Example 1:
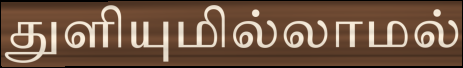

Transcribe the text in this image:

துளியுமில்லாமல்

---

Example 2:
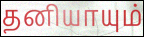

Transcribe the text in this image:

தனியாயும்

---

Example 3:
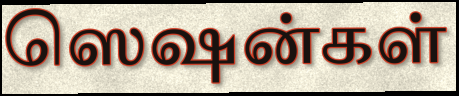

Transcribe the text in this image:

ஸெஷன்கள்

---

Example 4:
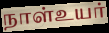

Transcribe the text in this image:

நாள்உயர்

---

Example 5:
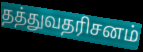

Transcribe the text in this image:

தத்துவதரிசனம்